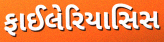
ફાઈલેરિયાસિસ